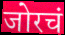
जोरचं